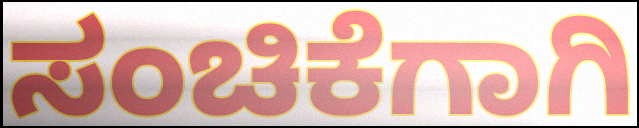
ಸಂಚಿಕೆಗಾಗಿ